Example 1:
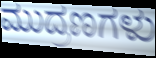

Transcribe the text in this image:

ಮುದ್ರಣಗಳು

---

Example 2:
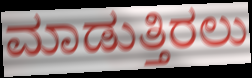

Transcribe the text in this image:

ಮಾಡುತ್ತಿರಲು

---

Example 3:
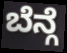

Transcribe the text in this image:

ಬೆನ್ಗೆ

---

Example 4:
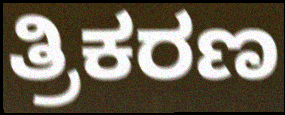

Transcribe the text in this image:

ತ್ರಿಕರಣ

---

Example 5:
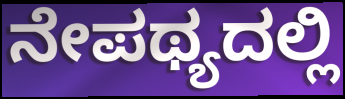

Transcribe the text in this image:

ನೇಪಥ್ಯದಲ್ಲಿ